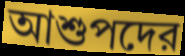
আশুপদের